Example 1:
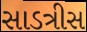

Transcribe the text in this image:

સાડત્રીસ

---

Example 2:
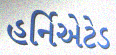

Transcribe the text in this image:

હર્નિએટેડ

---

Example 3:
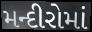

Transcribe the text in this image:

મન્દીરોમાં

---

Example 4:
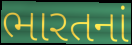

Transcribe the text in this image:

ભારતનાં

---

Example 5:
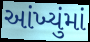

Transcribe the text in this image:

આંખ્યુંમાં